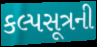
કલ્પસૂત્રની